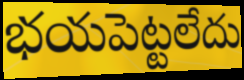
భయపెట్టలేదు